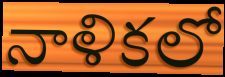
నాళికలో